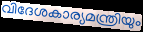
വിദേശകാര്യമന്ത്രിയും